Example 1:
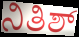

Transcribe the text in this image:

ನಿತಿಶ್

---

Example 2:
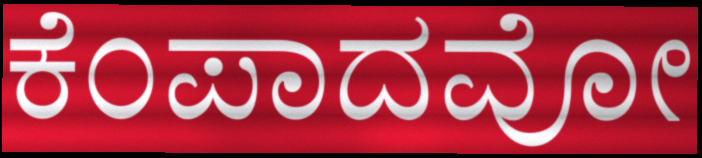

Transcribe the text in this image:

ಕೆಂಪಾದವೋ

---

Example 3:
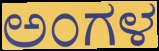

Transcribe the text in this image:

ಅಂಗಳ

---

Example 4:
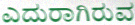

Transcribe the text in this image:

ಎದುರಾಗಿರುವ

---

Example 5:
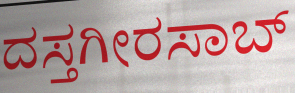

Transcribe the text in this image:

ದಸ್ತಗೀರಸಾಬ್